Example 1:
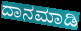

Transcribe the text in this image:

ದಾನಮಾಡಿ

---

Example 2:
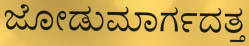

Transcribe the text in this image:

ಜೋಡುಮಾರ್ಗದತ್ತ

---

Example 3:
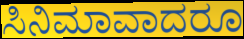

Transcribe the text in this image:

ಸಿನಿಮಾವಾದರೂ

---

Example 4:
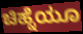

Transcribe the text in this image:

ಚಿಹ್ನೆಯೂ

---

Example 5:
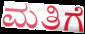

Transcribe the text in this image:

ಮತಿಗೆ